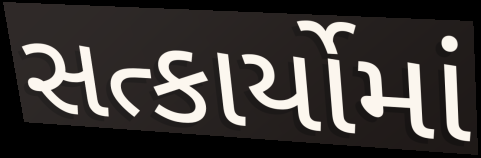
સત્કાર્યોમાં